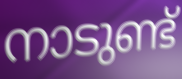
നാടുണ്ട്